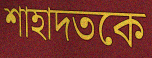
শাহাদতকে